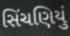
સિંચણિયું